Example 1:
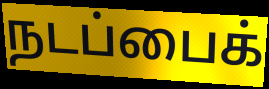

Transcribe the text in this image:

நடப்பைக்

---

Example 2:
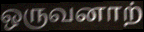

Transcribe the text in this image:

ஒருவனாற்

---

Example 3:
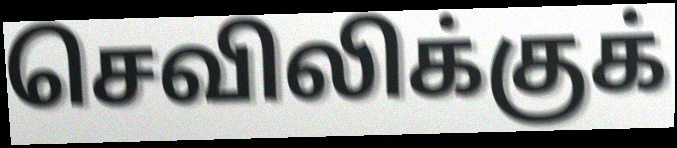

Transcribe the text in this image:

செவிலிக்குக்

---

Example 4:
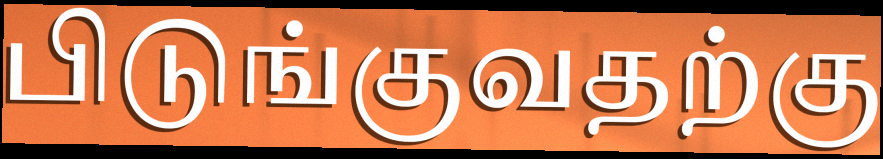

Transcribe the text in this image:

பிடுங்குவதற்கு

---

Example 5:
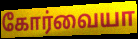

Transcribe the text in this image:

கோர்வையா